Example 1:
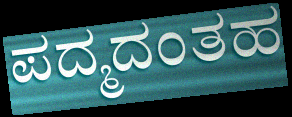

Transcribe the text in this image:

ಪದ್ಮದಂತಹ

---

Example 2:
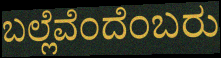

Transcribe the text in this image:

ಬಲ್ಲೆವೆಂದೆಂಬರು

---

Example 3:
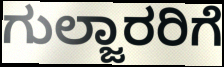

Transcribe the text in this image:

ಗುಲ್ಜಾರರಿಗೆ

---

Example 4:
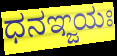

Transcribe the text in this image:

ಧನಞ್ಜಯಃ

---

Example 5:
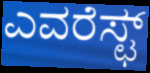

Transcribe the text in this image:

ಎವರೆಸ್ಟ್